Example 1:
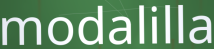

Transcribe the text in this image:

modalilla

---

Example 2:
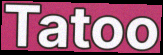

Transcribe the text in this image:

Tatoo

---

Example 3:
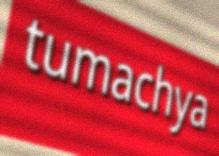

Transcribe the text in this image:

tumachya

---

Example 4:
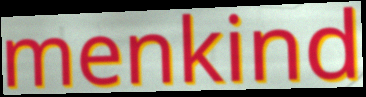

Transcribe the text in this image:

menkind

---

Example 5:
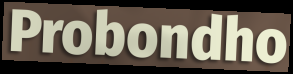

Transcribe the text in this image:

Probondho